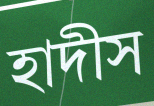
হাদীস